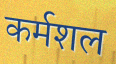
कर्मशल